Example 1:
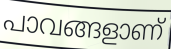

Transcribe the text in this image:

പാവങ്ങളാണ്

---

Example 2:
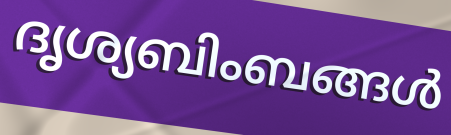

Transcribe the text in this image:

ദൃശ്യബിംബങ്ങൾ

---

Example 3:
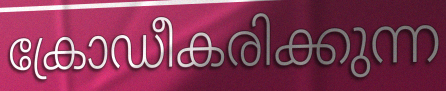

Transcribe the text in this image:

ക്രോഡീകരിക്കുന്ന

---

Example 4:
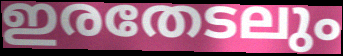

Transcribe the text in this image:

ഇരതേടലും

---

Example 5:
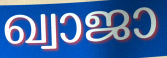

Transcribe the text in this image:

ഖ്വാജാ